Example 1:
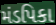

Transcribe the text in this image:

મંડપિકા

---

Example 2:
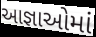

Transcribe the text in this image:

આજ્ઞાઓમાં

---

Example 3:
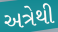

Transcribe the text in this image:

અત્રેથી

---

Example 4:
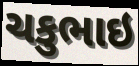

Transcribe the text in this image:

ચકુભાઇ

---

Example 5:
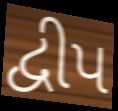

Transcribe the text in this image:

દ્વીપ